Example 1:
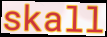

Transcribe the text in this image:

skall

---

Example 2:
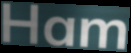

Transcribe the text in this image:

Ham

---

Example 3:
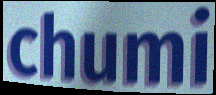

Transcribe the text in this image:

chumi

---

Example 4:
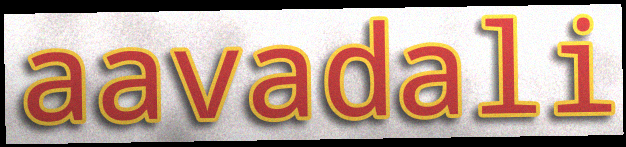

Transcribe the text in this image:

aavadali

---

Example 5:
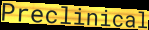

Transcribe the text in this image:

Preclinical